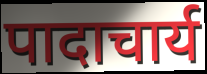
पादाचार्य